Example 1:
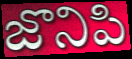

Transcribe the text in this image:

జొనిపి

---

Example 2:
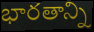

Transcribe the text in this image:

భారతాన్ని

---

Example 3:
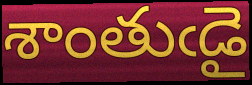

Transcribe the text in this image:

శాంతుఁడై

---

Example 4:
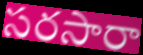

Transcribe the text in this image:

సరసారా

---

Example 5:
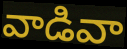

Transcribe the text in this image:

వాడివా